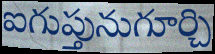
ఐగుప్తునుగూర్చి